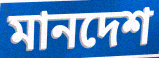
মানদেশ